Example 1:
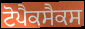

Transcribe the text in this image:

ਟੋਪੈਕਸੈਕਸ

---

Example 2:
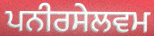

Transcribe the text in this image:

ਪਨੀਰਸੇਲਵਮ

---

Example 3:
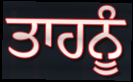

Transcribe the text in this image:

ਤਾਹਨੂੰ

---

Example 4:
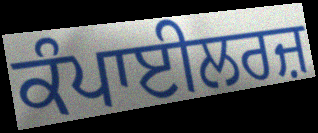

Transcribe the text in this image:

ਕੰਪਾਈਲਰਜ਼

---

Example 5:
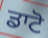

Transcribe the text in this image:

ਡਾਟੋ